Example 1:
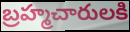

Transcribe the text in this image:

బ్రహ్మచారులకి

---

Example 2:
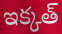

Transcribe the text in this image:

ఇక్కత్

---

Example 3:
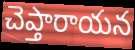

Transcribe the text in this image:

చెప్తారాయన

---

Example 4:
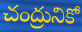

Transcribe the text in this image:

చంద్రునికో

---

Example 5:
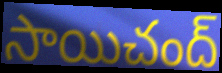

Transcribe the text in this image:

సాయిచంద్